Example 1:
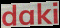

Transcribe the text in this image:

daki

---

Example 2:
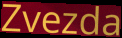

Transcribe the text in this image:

Zvezda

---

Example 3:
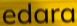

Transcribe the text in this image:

edara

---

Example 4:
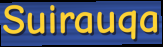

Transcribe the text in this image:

Suirauqa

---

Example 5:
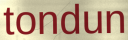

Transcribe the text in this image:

tondun